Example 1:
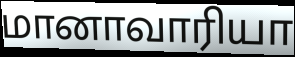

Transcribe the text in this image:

மானாவாரியா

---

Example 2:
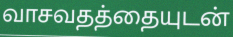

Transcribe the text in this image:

வாசவதத்தையுடன்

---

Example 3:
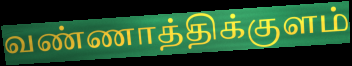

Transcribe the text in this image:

வண்ணாத்திக்குளம்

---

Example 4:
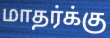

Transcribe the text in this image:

மாதர்க்கு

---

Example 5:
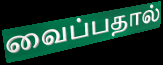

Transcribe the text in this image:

வைப்பதால்